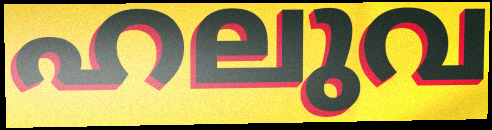
ഹലുവ